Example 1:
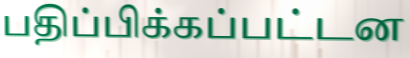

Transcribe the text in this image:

பதிப்பிக்கப்பட்டன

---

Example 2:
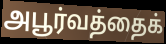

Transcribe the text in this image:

அபூர்வத்தைக்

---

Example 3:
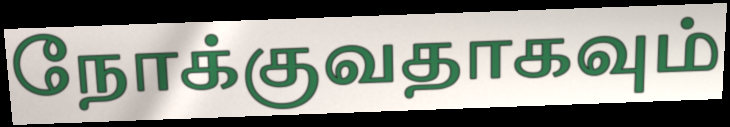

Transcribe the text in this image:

நோக்குவதாகவும்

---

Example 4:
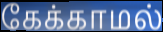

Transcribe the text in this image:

கேக்காமல்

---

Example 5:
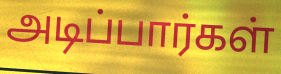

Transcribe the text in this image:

அடிப்பார்கள்